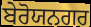
ਬੇਰੋਯਨਗਰ